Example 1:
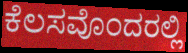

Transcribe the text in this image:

ಕೆಲಸವೊಂದರಲ್ಲಿ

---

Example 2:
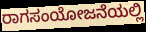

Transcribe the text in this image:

ರಾಗಸಂಯೋಜನೆಯಲ್ಲಿ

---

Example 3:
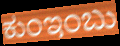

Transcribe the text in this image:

ಕುಂಇಂಬು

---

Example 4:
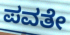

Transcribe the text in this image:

ಪವತೇ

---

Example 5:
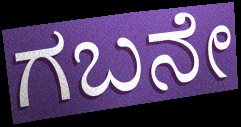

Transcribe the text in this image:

ಗಬನೇ